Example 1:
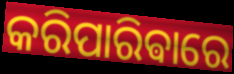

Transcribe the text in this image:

କରିପାରିଵାରେ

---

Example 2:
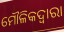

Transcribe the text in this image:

ମୌଳିକଦ୍ଵାରା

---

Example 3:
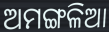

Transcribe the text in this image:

ଅମଙ୍ଗଳିଆ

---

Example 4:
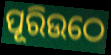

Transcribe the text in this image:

ପୂରିଉଠେ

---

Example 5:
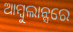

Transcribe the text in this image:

ଆମ୍ବୁଲାନ୍ସରେ